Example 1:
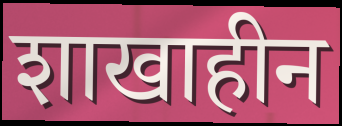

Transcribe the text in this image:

शाखाहीन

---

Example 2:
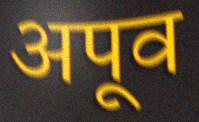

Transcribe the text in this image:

अपूव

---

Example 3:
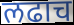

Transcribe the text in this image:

लढाच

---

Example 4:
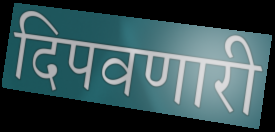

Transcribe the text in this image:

दिपवणारी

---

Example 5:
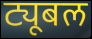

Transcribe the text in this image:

ट्यूबल